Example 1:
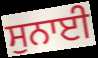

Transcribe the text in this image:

ਸੁਨਾਈ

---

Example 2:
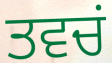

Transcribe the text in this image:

ਤਵਚਂ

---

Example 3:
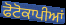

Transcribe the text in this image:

ਫੋਟੋਕਾਪੀਆਂ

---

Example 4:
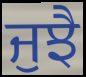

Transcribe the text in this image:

ਜੁਝੈ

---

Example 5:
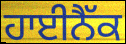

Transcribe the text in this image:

ਹਾਈਨੈੱਕ